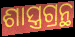
ଶାସ୍ତ୍ରଗ୍ରନ୍ଥ